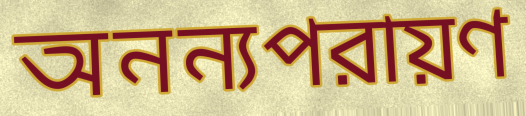
অনন্যপরায়ণ